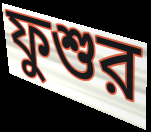
ফুশুর